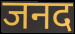
जनद